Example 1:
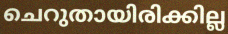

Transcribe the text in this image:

ചെറുതായിരിക്കില്ല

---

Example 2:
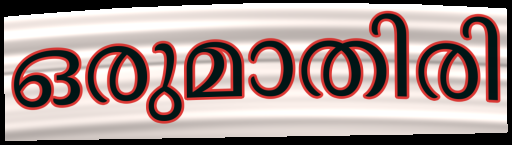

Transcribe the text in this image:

ഒരുമാതിരി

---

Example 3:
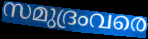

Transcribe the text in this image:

സമുദ്രംവരെ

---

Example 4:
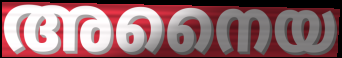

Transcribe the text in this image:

അനൈയ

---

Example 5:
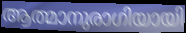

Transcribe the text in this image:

ആത്മാനുരാഗിയായി